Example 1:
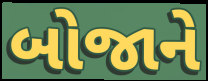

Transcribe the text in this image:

બોજાને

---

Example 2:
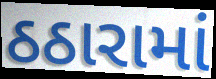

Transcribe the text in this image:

ઠઠારામાં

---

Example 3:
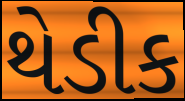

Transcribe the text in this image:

થેડીક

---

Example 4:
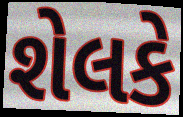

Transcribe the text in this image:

શેલકે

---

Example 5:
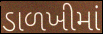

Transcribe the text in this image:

ડાળખીમાં